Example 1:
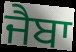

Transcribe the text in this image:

ਜੈਬਾ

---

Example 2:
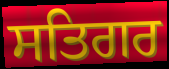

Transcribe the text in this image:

ਸਤਿਗਰ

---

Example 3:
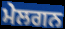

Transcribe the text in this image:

ਮੇਲਗਨ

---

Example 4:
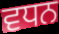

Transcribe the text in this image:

ਵਧਨ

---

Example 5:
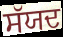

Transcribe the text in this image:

ਸੱਯਦ